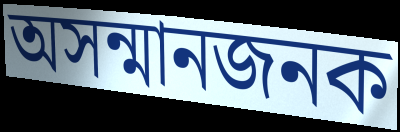
অসন্মানজনক